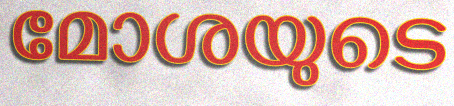
മോശയുടെ